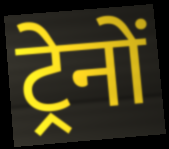
ट्रेनों